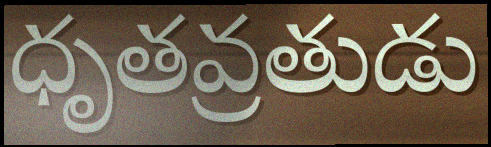
ధృతవ్రతుడు